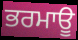
ਭਰਮਾਊ